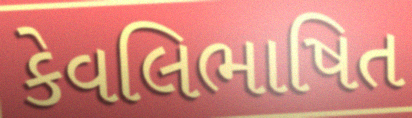
કેવલિભાષિત